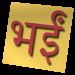
भईं